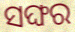
ସଙ୍ଘର